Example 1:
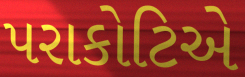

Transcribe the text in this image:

પરાકોટિએ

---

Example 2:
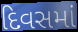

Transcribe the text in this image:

દિવસમાં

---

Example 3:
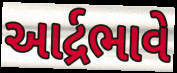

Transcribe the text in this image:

આર્દ્રભાવે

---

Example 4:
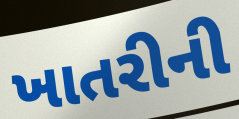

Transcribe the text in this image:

ખાતરીની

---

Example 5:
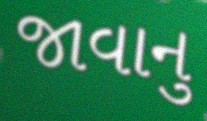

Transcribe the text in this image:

જાવાનુ